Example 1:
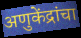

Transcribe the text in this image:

अणुकेंद्रांचा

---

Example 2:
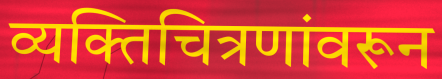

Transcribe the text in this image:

व्यक्तिचित्रणांवरून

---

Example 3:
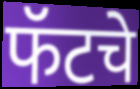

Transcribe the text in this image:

फॅटचे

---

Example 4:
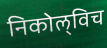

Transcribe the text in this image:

निकोल्विच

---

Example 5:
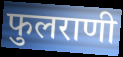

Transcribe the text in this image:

फुलराणी